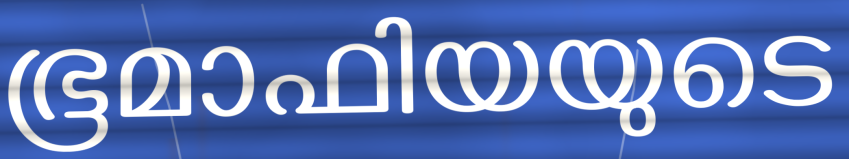
ഭൂമാഫിയയുടെ